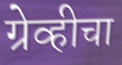
ग्रेव्हीचा